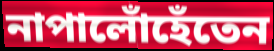
নাপালোঁহেঁতেন